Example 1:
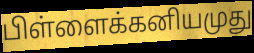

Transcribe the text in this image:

பிள்ளைக்கனியமுது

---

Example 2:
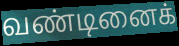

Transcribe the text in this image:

வண்டினைக்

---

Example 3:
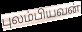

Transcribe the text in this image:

புலம்பியவன்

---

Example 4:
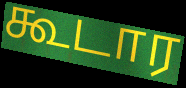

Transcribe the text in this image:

கூடார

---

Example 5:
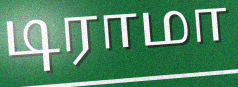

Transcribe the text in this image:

டிராமா